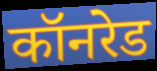
कॉनरेड